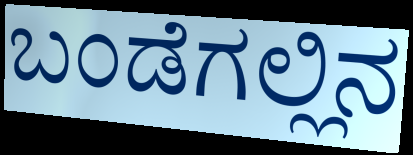
ಬಂಡೆಗಲ್ಲಿನ